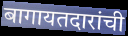
बागायतदारांची